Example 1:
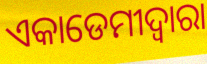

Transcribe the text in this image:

ଏକାଡେମୀଦ୍ୱାରା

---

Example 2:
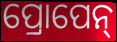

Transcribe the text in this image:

ପ୍ରୋପେନ୍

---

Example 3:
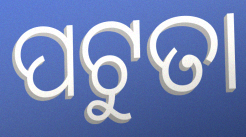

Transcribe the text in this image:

ପଟୁତା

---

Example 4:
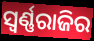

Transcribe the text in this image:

ସ୍ଵର୍ଣ୍ଣରାଜିର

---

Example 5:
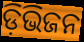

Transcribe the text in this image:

ଡ଼ିଭିଜନ